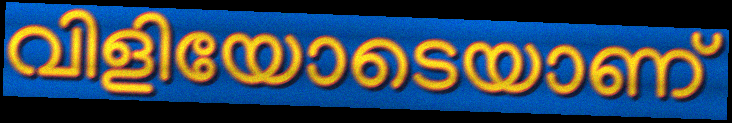
വിളിയോടെയാണ്